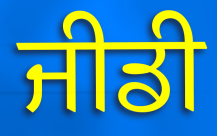
ਜੀਡੀ